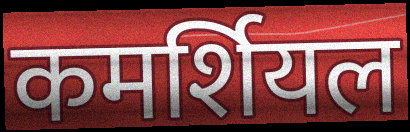
कमर्शियल